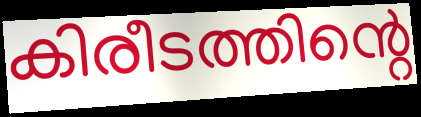
കിരീടത്തിന്റെ